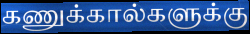
கணுக்கால்களுக்கு